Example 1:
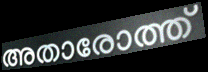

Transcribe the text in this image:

അതാരോത്ത്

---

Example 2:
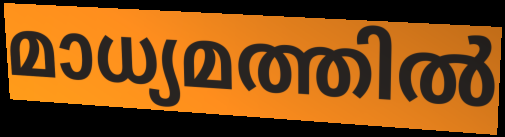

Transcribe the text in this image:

മാധ്യമത്തിൽ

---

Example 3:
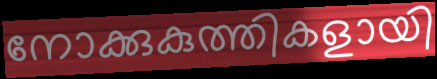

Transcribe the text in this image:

നോക്കുകുത്തികളായി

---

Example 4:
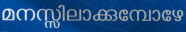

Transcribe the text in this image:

മനസ്സിലാക്കുമ്പോഴേ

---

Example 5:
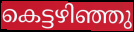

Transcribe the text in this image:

കെട്ടഴിഞ്ഞു